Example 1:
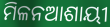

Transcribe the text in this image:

ମିଳନଆଶାୟୀ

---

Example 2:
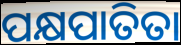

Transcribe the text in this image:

ପକ୍ଷପାତିତା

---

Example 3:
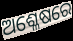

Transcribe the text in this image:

ଅଶ୍ଳେଷରେ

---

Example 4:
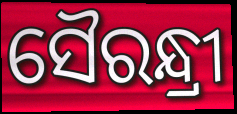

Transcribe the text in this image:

ସୈରନ୍ଧ୍ରୀ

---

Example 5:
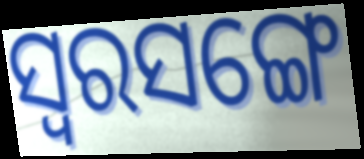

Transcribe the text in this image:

ସ୍ୱରସଙ୍ଗେ